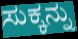
ಸುಕ್ಕನ್ನು